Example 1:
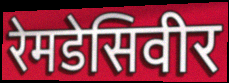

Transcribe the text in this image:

रेमडेसिवीर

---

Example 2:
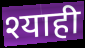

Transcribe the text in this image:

श्याही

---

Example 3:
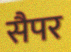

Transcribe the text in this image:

सैपर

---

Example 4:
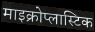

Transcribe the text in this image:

माइक्रोप्लास्टिक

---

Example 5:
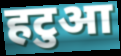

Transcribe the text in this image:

हटुआ